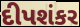
દીપશંકર